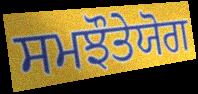
ਸਮਝੌਤੇਯੋਗ